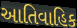
આતિવાહિક